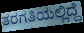
ತರಗತಿಯಲ್ಲಿದ್ದೆ